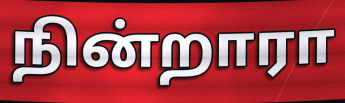
நின்றாரா